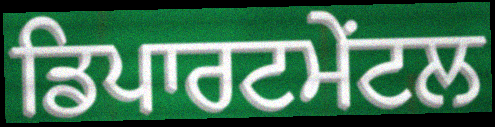
ਡਿਪਾਰਟਮੇਂਟਲ